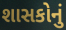
શાસકોનું